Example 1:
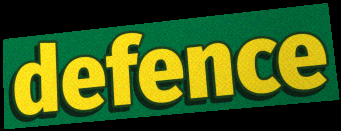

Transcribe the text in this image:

defence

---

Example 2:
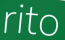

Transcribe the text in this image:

rito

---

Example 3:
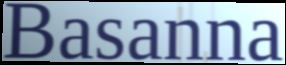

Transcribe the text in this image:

Basanna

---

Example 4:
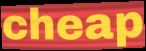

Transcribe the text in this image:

cheap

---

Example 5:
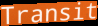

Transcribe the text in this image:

Transit